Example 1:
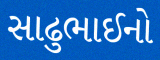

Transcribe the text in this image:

સાઢુભાઈનો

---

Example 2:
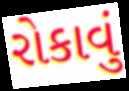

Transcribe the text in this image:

રોકાવું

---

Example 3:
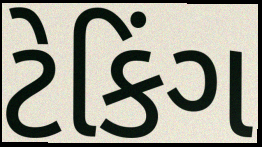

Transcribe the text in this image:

ટેકિંગ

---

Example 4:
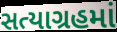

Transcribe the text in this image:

સત્યાગ્રહમાં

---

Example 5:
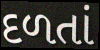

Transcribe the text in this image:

દળતાં